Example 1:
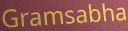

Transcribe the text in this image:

Gramsabha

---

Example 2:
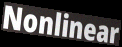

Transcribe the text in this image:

Nonlinear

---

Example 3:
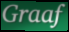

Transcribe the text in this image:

Graaf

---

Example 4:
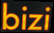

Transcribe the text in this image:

bizi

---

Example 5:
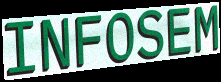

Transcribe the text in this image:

INFOSEM